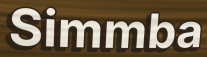
Simmba